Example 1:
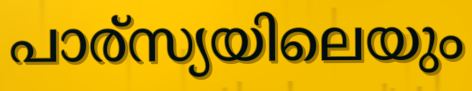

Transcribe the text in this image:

പാര്സ്യയിലെയും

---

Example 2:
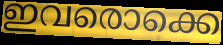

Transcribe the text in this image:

ഇവരൊക്കെ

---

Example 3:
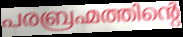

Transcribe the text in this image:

പരബ്രഹ്മത്തിന്റെ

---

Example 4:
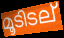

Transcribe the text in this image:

മൂടിടല്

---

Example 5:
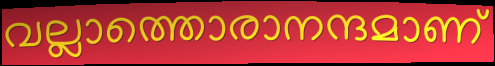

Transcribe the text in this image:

വല്ലാത്തൊരാനന്ദമാണ്